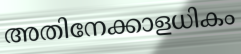
അതിനേക്കാളധികം